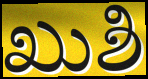
ಖುಶಿ